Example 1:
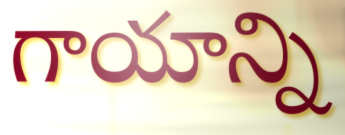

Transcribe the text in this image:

గాయాన్ని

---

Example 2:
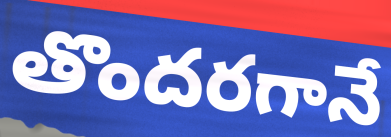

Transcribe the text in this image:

తొందరగానే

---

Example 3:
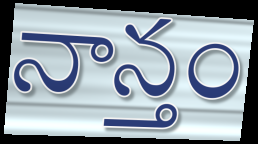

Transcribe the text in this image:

నాన్తం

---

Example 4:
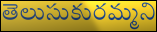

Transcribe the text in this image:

తెలుసుకురమ్మని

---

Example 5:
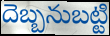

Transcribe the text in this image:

దెబ్బనుబట్టి